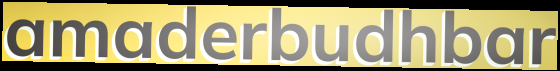
amaderbudhbar